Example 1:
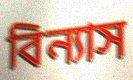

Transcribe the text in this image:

বিন্যাস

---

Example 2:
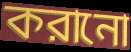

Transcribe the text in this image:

করানো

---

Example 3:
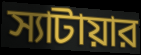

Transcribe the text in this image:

স্যাটায়ার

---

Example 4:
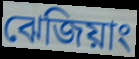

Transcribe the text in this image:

ঝেজিয়াং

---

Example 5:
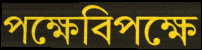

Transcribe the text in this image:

পক্ষেবিপক্ষে